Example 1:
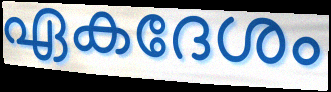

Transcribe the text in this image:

ഏകദേശം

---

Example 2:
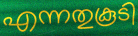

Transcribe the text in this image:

എന്നതുകൂടി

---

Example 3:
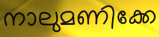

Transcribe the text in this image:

നാലുമണിക്കേ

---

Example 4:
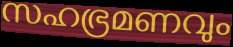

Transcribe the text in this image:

സഹഭ്രമണവും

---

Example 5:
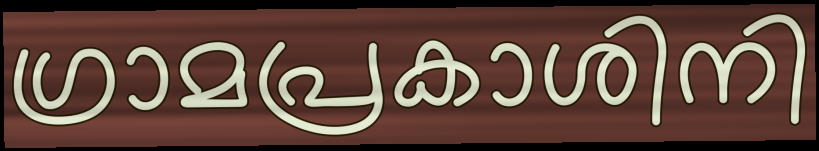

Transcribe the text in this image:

ഗ്രാമപ്രകാശിനി